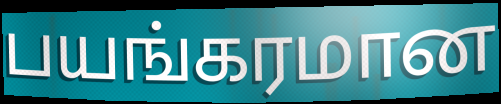
பயங்கரமான